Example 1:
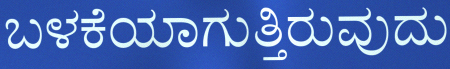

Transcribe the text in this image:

ಬಳಕೆಯಾಗುತ್ತಿರುವುದು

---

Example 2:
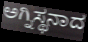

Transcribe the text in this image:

ಅಗ್ನಿಸ್ಥನಾದ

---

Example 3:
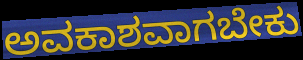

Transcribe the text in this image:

ಅವಕಾಶವಾಗಬೇಕು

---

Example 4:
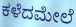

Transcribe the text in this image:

ಕಳೆದಮೇಲೆ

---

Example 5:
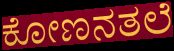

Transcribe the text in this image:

ಕೋಣನತಲೆ